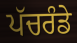
ਪੱਚਰੰਡੇ